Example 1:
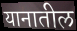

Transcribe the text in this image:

यानातील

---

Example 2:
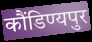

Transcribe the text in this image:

कौंडिण्यपुर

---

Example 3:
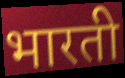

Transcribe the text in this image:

भारती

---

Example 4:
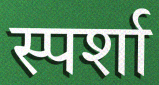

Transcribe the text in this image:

स्पर्शा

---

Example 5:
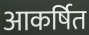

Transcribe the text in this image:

आकर्षित